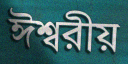
ঈশ্বরীয়